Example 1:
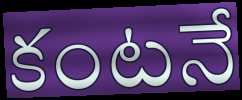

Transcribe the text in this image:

కంటనే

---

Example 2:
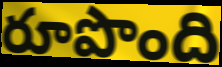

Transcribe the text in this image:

రూపొంది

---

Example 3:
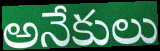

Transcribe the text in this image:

అనేకులు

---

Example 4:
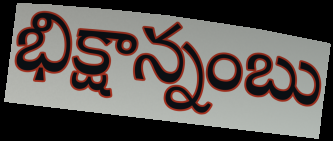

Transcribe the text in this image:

భిక్షాన్నంబు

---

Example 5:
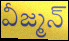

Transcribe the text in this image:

వీజ్మన్